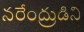
నరేంద్రుడిని